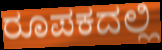
ರೂಪಕದಲ್ಲಿ